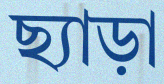
ছ্যাড়া